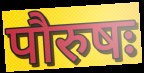
पौरुषः